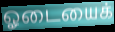
ஓடையைக்